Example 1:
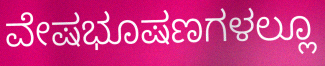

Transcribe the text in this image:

ವೇಷಭೂಷಣಗಳಲ್ಲೂ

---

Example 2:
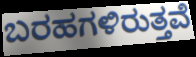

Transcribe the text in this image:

ಬರಹಗಳಿರುತ್ತವೆ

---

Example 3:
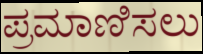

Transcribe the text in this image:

ಪ್ರಮಾಣಿಸಲು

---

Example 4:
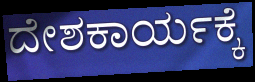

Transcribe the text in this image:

ದೇಶಕಾರ್ಯಕ್ಕೆ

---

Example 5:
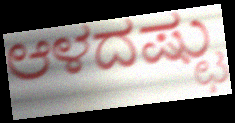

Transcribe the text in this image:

ಆಳದಷ್ಟು